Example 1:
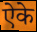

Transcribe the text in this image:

ऐके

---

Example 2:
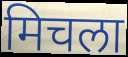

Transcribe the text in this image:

मिचला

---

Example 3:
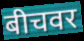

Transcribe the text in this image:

बीचवर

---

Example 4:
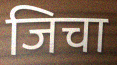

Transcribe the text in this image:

जिचा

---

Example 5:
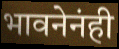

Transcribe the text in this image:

भावनेनंही